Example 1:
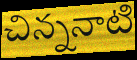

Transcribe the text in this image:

చిన్ననాటి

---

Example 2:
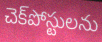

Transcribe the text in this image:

చెక్‌పోస్టులను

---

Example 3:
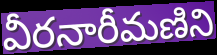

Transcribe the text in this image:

వీరనారీమణిని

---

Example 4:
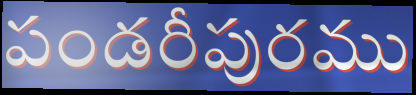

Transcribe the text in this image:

పండరీపురము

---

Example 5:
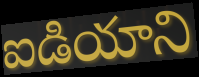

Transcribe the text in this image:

ఐడియాని